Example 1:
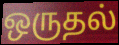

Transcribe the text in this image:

ஒருதல்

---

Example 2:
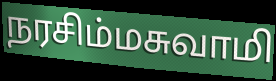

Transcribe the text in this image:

நரசிம்மசுவாமி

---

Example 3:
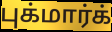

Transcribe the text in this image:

புக்மார்க்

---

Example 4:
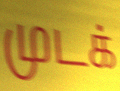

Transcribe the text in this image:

முடக்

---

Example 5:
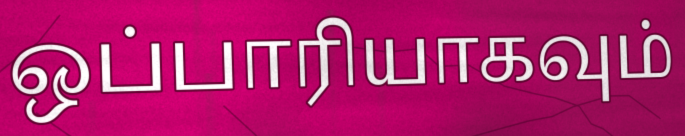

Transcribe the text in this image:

ஒப்பாரியாகவும்